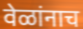
वेळांनाच